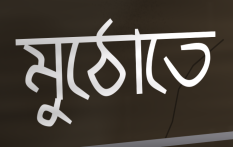
মুঠোতে